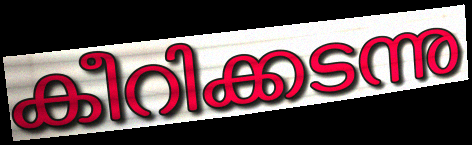
കീറിക്കടന്നു